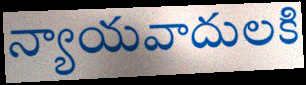
న్యాయవాదులకి